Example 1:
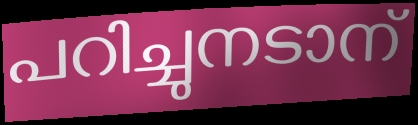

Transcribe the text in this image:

പറിച്ചുനടാന്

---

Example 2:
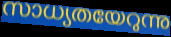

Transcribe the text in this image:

സാധ്യതയേറുന്നു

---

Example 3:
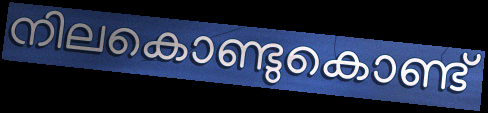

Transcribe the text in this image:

നിലകൊണ്ടുകൊണ്ട്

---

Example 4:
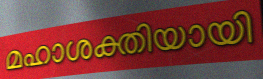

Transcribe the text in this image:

മഹാശക്തിയായി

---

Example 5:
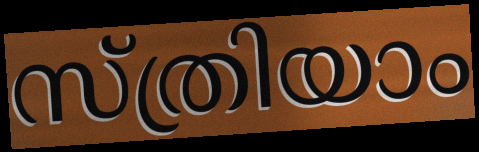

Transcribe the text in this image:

സ്ത്രിയാം